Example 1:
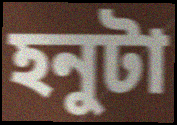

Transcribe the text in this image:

হনুটা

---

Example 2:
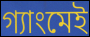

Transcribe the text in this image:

গ্যাংমেই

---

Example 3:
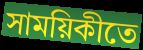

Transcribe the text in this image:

সাময়িকীতে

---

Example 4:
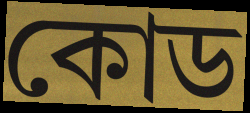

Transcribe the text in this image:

কোড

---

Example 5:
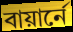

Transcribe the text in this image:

বায়ার্নে